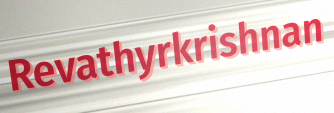
Revathyrkrishnan